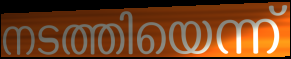
നടത്തിയെന്ന്